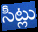
సీట్లు